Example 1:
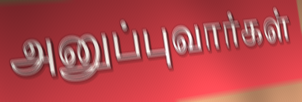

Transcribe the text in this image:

அனுப்புவார்கள்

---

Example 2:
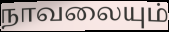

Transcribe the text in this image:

நாவலையும்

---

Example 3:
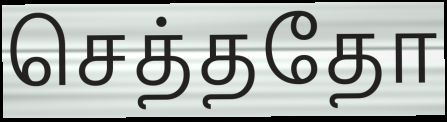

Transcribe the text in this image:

செத்ததோ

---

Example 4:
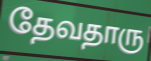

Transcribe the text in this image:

தேவதாரு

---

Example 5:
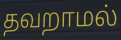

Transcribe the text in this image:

தவறாமல்